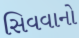
સિવવાનો